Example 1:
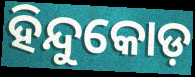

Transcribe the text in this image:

ହିନ୍ଦୁକୋଡ଼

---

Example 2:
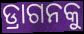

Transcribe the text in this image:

ଡ୍ରାଗନକୁ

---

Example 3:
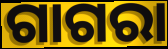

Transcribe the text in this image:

ଗାଗରା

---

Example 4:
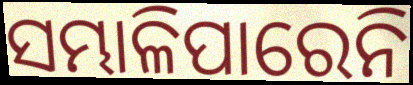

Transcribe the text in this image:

ସମ୍ଭାଳିପାରେନି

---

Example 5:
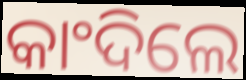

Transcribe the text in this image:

କାଂଦିଲେ